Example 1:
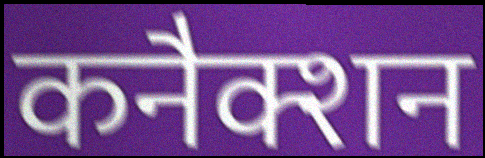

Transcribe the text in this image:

कनैक्शन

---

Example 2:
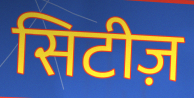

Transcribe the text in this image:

सिटीज़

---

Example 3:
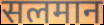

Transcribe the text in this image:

सलमान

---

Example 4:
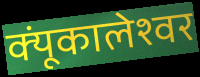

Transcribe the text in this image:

क्यूंकालेश्वर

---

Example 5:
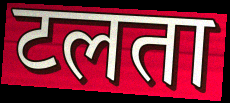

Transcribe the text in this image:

टलता